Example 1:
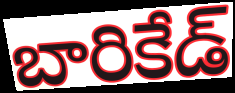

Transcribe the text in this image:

బారికేడ్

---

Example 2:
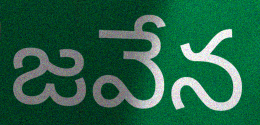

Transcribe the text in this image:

జవేన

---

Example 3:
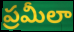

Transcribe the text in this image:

ప్రమీలా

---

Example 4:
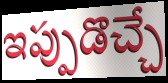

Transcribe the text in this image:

ఇప్పుడొచ్చే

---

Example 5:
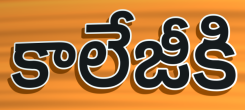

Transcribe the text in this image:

కాలేజీకి